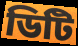
ডিটি